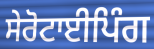
ਸੇਰੋਟਾਈਪਿੰਗ